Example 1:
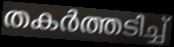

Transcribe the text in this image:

തകർത്തടിച്ച്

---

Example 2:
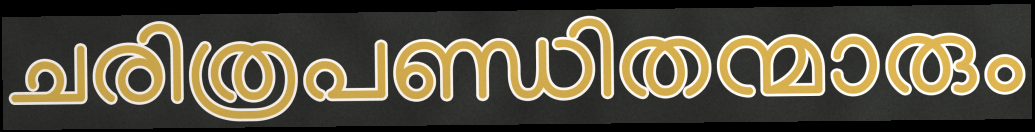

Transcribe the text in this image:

ചരിത്രപണ്ഡിതന്മാരും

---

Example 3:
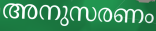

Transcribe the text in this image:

അനുസരണം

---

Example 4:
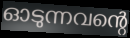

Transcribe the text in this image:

ഓടുന്നവന്റെ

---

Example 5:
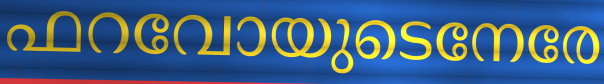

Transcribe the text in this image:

ഫറവോയുടെനേരേ